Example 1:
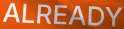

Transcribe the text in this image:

ALREADY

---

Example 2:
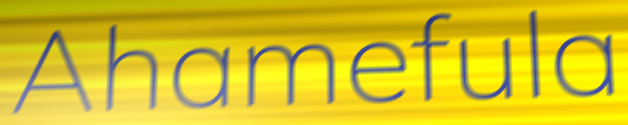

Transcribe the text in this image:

Ahamefula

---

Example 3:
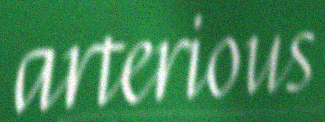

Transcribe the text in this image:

arterious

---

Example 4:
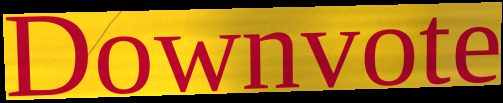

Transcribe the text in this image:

Downvote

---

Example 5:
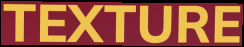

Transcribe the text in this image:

TEXTURE